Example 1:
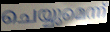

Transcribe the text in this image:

ചെയ്യുമെന്ന്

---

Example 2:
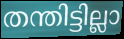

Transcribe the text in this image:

തന്തിട്ടില്ലാ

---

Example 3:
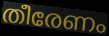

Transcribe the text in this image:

തീരേണം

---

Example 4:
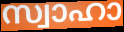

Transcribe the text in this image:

സ്വാഹാ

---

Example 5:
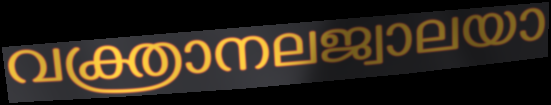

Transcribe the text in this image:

വക്ത്രാനലജ്വാലയാ